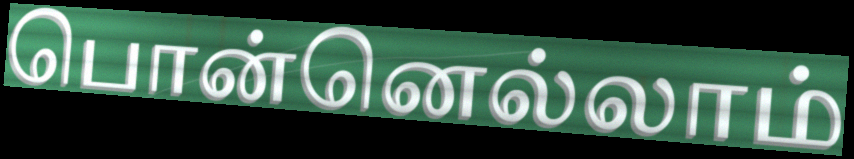
பொன்னெல்லாம்